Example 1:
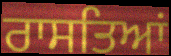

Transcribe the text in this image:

ਰਾਸਤਿਆਂ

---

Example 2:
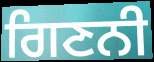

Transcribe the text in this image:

ਗਿਣਨੀ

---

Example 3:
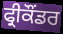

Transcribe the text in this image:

ਫ੍ਰੀਕੌਂਡਰ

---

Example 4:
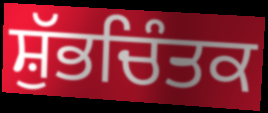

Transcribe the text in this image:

ਸ਼ੁੱਭਚਿੰਤਕ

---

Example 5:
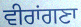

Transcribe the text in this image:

ਵੀਰਾਂਗਣਾ